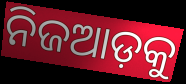
ନିଜଆଡ଼କୁ